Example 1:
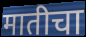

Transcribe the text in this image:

मातीचा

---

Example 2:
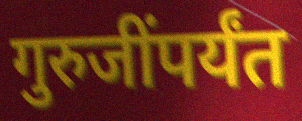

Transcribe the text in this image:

गुरुजींपर्यंत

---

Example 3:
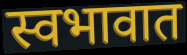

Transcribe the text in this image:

स्वभावात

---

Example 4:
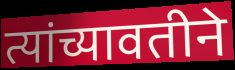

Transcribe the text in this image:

त्यांच्यावतीने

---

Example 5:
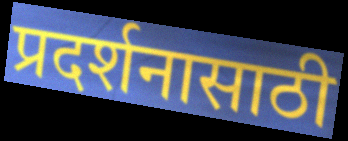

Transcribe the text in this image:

प्रदर्शनासाठी